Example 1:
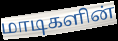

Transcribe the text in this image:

மாடிகளின்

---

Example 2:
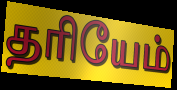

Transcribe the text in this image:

தரியேம்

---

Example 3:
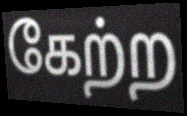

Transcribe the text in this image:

கேற்ற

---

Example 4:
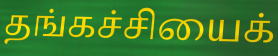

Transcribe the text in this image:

தங்கச்சியைக்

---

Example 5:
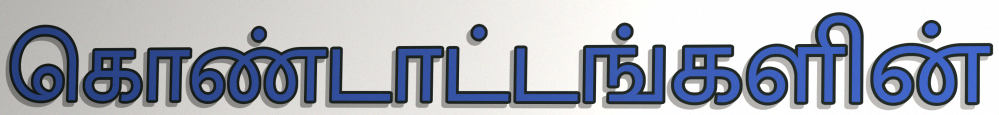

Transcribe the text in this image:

கொண்டாட்டங்களின்